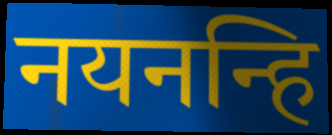
नयनन्हि